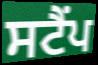
ਸਟੈਂਪ